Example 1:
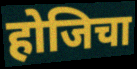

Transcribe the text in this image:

होजिचा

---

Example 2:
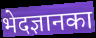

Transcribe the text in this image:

भेदज्ञानका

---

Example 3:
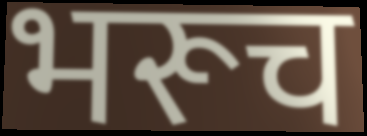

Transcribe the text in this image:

भरूच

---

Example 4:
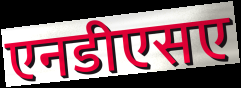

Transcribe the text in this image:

एनडीएसए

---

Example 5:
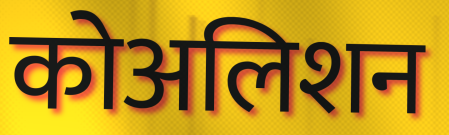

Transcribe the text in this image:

कोअलिशन